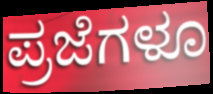
ಪ್ರಜೆಗಳೂ